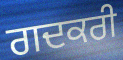
ਗਦਕਰੀ